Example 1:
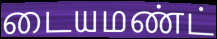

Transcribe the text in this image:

டையமண்ட்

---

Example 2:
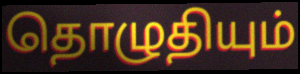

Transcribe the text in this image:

தொழுதியும்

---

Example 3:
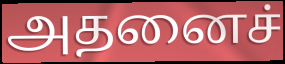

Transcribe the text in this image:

அதனைச்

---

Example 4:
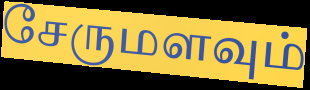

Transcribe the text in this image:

சேருமளவும்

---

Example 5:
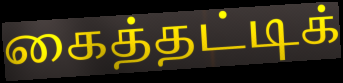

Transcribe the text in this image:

கைத்தட்டிக்